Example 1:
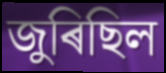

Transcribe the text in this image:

জুৰিছিল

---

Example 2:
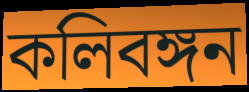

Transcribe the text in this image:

কলিবঙ্গন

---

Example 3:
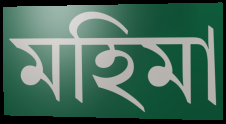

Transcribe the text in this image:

মহিমা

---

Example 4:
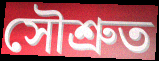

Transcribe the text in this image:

সৌশ্ৰুত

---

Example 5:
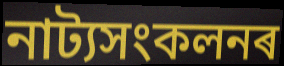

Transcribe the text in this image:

নাট্যসংকলনৰ